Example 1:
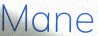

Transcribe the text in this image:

Mane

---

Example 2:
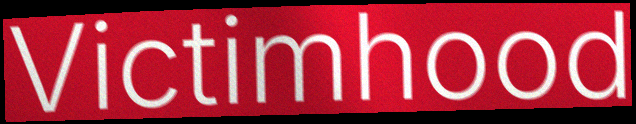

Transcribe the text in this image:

Victimhood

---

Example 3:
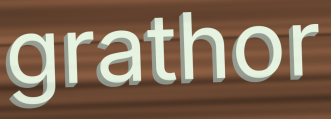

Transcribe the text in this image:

grathor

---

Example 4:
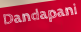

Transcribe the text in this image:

Dandapani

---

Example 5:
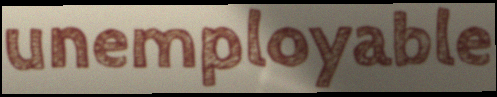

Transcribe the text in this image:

unemployable